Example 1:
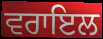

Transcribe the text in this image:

ਵਰਾਇਲ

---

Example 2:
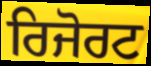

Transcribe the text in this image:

ਰਿਜੋਰਟ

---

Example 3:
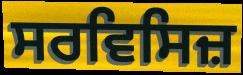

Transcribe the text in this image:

ਸਰਵਿਸਿਜ਼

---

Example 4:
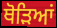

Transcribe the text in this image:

ਥੋੜਿਆਂ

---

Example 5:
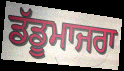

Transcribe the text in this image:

ਡੱਡੂਮਾਜਰਾ